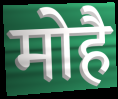
मोहै